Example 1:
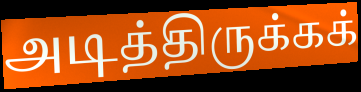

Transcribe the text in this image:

அடித்திருக்கக்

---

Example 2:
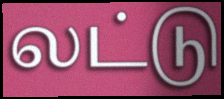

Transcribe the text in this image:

லட்டு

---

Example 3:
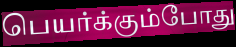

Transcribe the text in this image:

பெயர்க்கும்போது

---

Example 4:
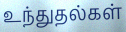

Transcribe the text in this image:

உந்துதல்கள்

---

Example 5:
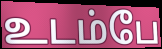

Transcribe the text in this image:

உடம்பே